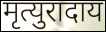
मृत्युरादाय